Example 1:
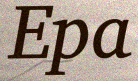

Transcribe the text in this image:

Epa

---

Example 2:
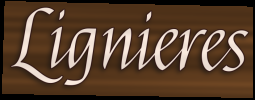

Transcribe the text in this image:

Lignieres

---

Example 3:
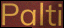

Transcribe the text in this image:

Palti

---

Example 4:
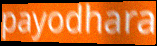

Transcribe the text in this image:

payodhara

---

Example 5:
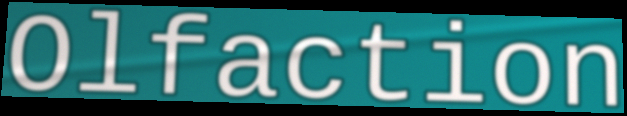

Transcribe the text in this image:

Olfaction